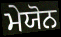
ਮੇਯੋਨ